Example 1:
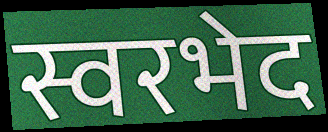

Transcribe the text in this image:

स्वरभेद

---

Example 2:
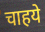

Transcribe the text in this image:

चाहये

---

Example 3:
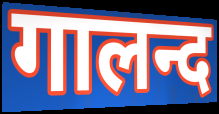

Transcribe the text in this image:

गालन्द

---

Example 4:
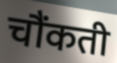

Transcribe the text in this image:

चौंकती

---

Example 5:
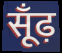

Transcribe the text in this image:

सूँढ़